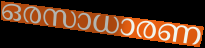
ഒരസാധാരണ